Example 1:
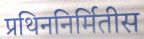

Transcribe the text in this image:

प्रथिननिर्मितीस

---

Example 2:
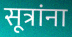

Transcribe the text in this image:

सूत्रांना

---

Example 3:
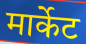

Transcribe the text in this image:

मार्केट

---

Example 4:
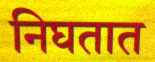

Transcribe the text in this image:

निघतात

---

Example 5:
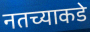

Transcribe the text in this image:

नतच्याकडे